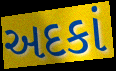
અદકાં